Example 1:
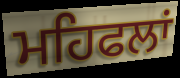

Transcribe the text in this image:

ਮਹਿਫਲਾਂ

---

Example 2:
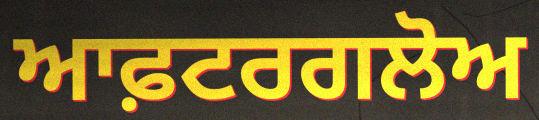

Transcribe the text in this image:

ਆਫ਼ਟਰਗਲੋਅ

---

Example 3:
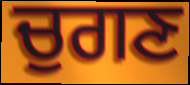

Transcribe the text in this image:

ਚੁਗਣ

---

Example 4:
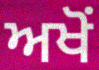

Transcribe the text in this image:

ਅਖੋਂ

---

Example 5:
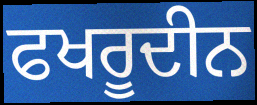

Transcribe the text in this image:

ਫਖਰੂਦੀਨ